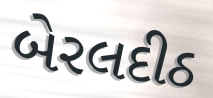
બેરલદીઠ